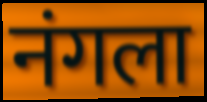
नंगला